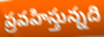
ప్రవహిస్తున్నది